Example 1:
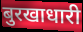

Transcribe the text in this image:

बुरखाधारी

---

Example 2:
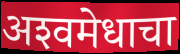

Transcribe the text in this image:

अश्‍वमेधाचा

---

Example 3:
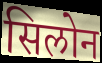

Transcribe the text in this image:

सिलोन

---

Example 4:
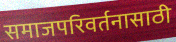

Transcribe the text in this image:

समाजपरिवर्तनासाठी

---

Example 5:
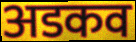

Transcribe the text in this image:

अडकव